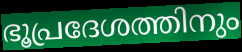
ഭൂപ്രദേശത്തിനും